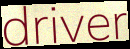
driver